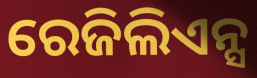
ରେଜିଲିଏନ୍ସ